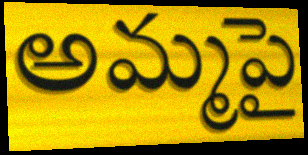
అమ్మపై